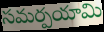
సమర్పయామి